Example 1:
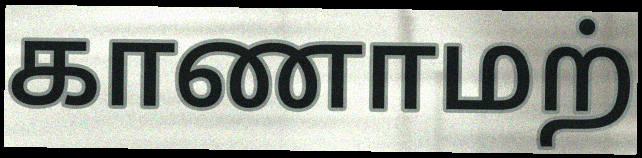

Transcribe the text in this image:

காணாமற்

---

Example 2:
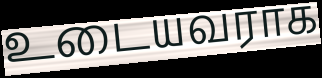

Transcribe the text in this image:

உடையவராக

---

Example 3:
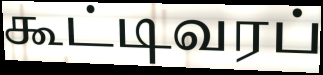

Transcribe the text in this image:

கூட்டிவரப்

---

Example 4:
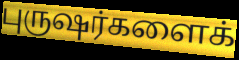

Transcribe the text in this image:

புருஷர்களைக்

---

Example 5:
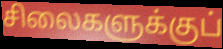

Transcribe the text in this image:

சிலைகளுக்குப்